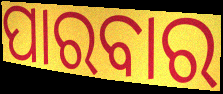
ପାରବାର